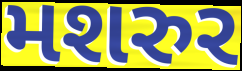
મશરુર